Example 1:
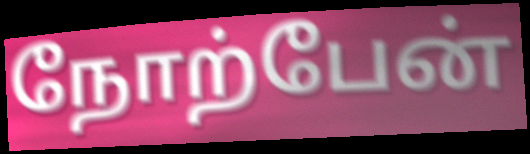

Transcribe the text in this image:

நோற்பேன்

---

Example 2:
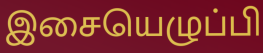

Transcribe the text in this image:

இசையெழுப்பி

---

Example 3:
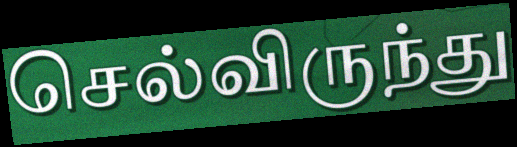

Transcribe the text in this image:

செல்விருந்து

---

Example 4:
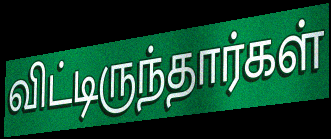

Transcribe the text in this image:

விட்டிருந்தார்கள்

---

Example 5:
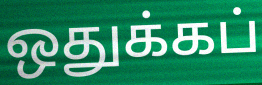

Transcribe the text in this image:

ஒதுக்கப்